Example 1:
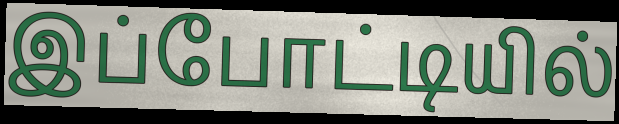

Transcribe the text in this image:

இப்போட்டியில்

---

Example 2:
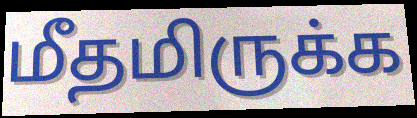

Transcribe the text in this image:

மீதமிருக்க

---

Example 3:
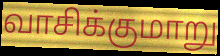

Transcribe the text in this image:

வாசிக்குமாறு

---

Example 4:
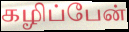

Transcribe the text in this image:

கழிப்பேன்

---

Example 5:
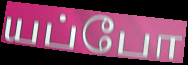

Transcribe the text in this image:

யப்போ